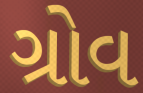
ગ્રોવ